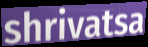
shrivatsa